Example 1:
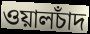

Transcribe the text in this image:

ওয়ালচাঁদ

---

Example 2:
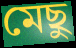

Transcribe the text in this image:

মেছু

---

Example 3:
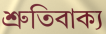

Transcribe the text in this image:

শ্রুতিবাক্য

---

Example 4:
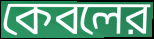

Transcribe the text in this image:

কেবলের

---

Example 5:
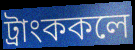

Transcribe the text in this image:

ট্রাংককলে